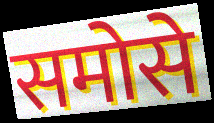
समोसे